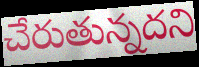
చేరుతున్నదని